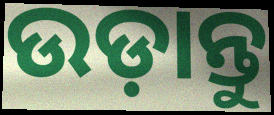
ଉଡ଼ାନ୍ତୁ